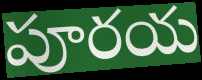
పూరయ